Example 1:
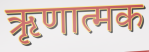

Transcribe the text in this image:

ऋृणात्मक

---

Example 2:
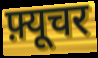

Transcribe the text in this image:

फ़्यूचर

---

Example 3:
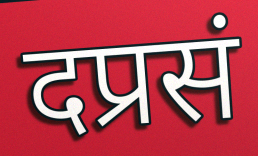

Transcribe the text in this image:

दप्रसं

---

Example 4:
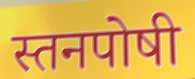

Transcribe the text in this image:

स्तनपोषी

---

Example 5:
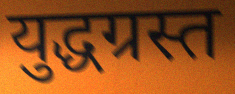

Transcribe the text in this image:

युद्धग्रस्त